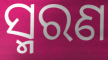
ସ୍ମରଣ